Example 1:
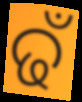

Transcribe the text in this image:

ଢଁ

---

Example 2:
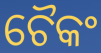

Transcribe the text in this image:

ଚୈକଂ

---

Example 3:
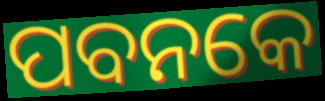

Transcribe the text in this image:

ପବନକେ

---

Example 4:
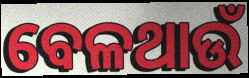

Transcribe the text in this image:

ବେଳଥାଉଁ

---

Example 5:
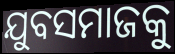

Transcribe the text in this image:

ଯୁବସମାଜକୁ